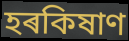
হৰকিষাণ